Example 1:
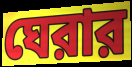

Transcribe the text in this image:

ঘেরার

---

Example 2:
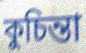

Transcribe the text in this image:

কুচিন্তা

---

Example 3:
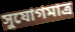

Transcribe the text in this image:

সুযোগমাত্র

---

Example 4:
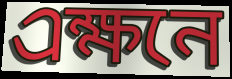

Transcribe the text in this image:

এক্ষনে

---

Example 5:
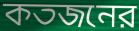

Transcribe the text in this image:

কতজনের